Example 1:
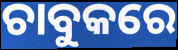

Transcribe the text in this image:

ଚାବୁକରେ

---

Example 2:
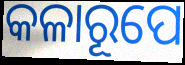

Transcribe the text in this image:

କଳାରୂପେ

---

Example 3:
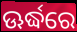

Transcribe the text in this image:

ଊର୍ଦ୍ଧରେ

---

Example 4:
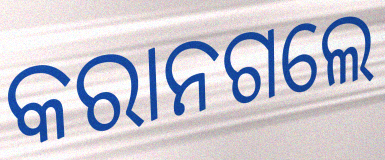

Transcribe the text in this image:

କରାନଗଲେ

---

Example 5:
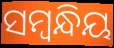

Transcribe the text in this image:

ସମ୍ଵନ୍ଧିୟ